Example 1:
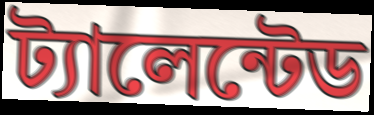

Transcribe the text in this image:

ট্যালেন্টেড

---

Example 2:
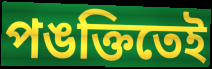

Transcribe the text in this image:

পঙক্তিতেই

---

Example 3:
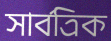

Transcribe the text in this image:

সার্বত্রিক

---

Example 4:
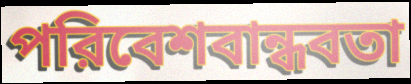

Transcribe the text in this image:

পরিবেশবান্ধবতা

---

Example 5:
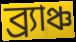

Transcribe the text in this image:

ব্র্যাঞ্চ